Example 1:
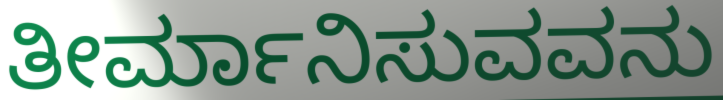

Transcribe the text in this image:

ತೀರ್ಮಾನಿಸುವವನು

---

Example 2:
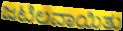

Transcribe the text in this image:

ಜಟಿಲವಾಯಿತು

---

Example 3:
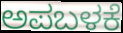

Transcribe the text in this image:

ಅಪಬಳಕೆ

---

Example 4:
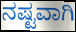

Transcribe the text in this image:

ನಷ್ಟವಾಗಿ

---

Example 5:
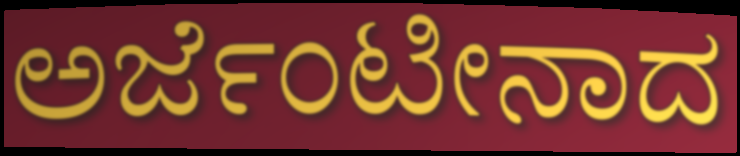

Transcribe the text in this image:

ಅರ್ಜೆಂಟೀನಾದ